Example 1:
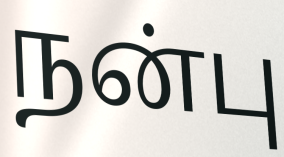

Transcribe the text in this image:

நன்பு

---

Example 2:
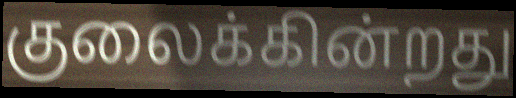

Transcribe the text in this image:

குலைக்கின்றது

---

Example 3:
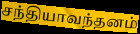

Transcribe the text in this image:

சந்தியாவந்தனம்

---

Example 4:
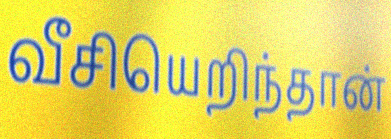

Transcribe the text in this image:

வீசியெறிந்தான்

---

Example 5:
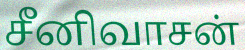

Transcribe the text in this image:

சீனிவாசன்